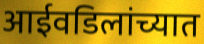
आईवडिलांच्यात